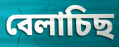
বেলাচিছ